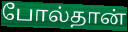
போல்தான்